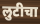
लुटीचा